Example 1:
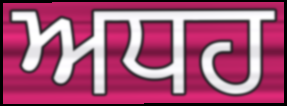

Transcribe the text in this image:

ਅਧਹ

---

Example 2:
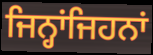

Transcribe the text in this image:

ਜਿਨ੍ਹਾਂਜਿਹਨਾਂ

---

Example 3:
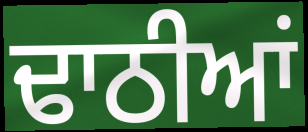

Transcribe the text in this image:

ਢਾਠੀਆਂ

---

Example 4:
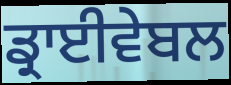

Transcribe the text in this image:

ਡ੍ਰਾਈਵੇਬਲ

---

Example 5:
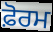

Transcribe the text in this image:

ਫ਼ੋਰਮ